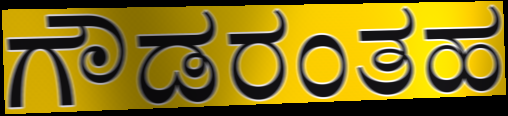
ಗೌಡರಂತಹ